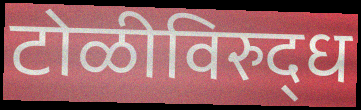
टोळीविरुद्ध